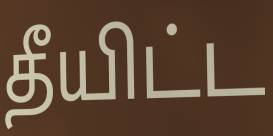
தீயிட்ட